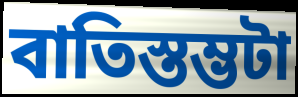
বাতিস্তম্ভটা